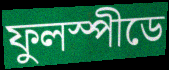
ফুলস্পীডে